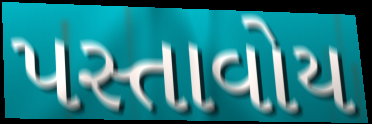
પસ્તાવોય